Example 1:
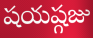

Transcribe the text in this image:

షయష్గజు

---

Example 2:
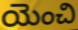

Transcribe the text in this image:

యెంచి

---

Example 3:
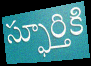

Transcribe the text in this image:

స్ఫూర్తికి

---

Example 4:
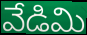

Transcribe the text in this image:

వేడిమి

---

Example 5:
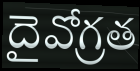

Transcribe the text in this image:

దైవోగ్రత